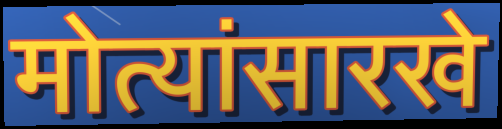
मोत्यांसारखे